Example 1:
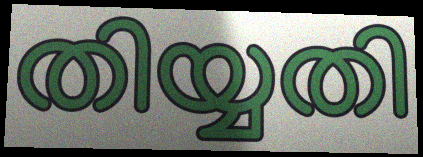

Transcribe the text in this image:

തിയ്യതി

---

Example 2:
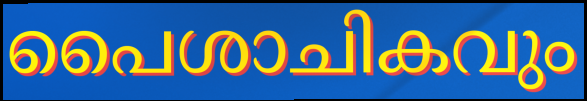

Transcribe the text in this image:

പൈശാചികവും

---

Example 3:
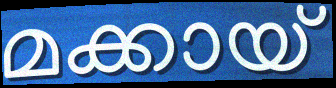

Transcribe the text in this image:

മക്കായ്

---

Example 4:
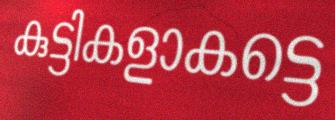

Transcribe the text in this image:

കുട്ടികളാകട്ടെ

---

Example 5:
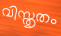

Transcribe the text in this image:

വിസ്തൃതം